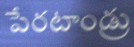
పేరటాండ్రు